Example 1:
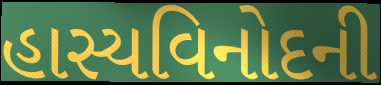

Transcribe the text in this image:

હાસ્યવિનોદની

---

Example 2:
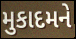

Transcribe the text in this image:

મુકાદમને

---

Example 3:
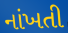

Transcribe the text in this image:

નાંખતી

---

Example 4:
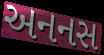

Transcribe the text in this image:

અનનસ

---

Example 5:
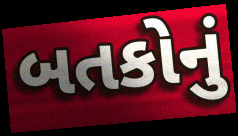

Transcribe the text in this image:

બતકોનું